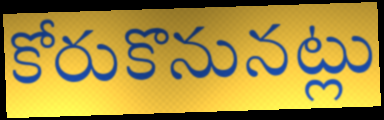
కోరుకొనునట్లు